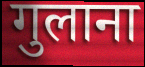
गुलाना